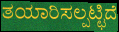
ತಯಾರಿಸಲ್ಪಟ್ಟಿದೆ